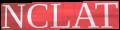
NCLAT